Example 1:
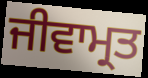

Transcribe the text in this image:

ਜੀਵਾਮ੍ਰਤ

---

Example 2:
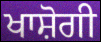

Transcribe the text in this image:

ਖਾਸ਼ੋਗੀ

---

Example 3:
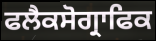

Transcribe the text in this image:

ਫਲੈਕਸੋਗ੍ਰਾਫਿਕ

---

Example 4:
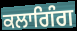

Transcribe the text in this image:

ਕਲਾਗਿੰਗ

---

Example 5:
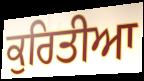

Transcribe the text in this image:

ਕੁਰਿਤੀਆ